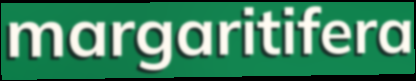
margaritifera